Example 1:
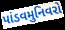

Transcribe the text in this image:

પાંડવમુનિવરો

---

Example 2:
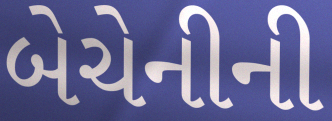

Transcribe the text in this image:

બેચેનીની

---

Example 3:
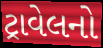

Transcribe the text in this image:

ટ્રાવેલનો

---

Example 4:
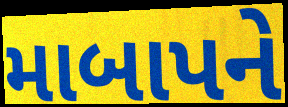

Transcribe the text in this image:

માબાપને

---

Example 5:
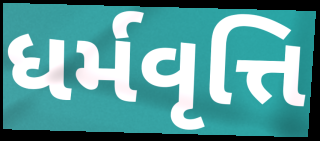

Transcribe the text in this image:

ધર્મવૃત્તિ